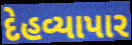
દેહવ્યાપાર